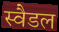
स्वैडल